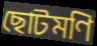
ছোটমণি